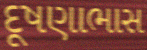
દૂષણાભાસ